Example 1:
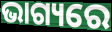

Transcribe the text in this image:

ଭାଗ୍ୟରେ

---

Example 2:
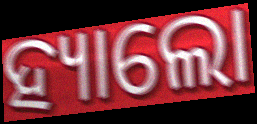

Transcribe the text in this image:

ହ୍ୟାଲୋ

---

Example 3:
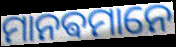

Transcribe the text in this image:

ମାନଵମାନେ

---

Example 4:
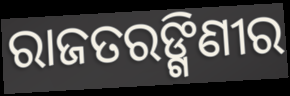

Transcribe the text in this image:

ରାଜତରଙ୍ଗିଣୀର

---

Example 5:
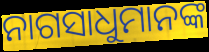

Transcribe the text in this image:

ନାଗସାଧୁମାନଙ୍କ